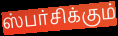
ஸ்பர்சிக்கும்